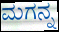
ಮಗನ್ನ